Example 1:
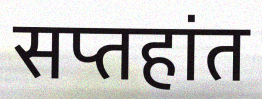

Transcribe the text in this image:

सप्तहांत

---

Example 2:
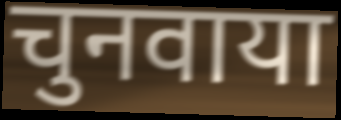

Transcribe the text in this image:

चुनवाया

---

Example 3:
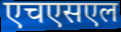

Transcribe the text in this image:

एचएसएल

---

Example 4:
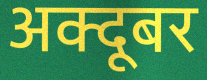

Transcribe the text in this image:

अक्दूबर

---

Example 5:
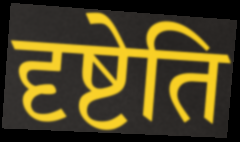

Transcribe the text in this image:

दृष्टेति